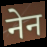
नेन